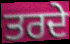
ਤਰਦੇ